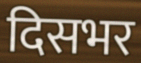
दिसभर